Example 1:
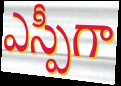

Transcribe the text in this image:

ఎస్పీగా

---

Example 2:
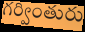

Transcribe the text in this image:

గర్వింతురు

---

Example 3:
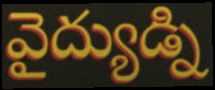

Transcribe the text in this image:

వైద్యుడ్ని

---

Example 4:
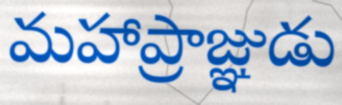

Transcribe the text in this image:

మహాప్రాజ్ఞుడు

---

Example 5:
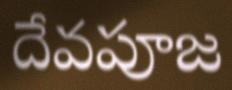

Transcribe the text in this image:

దేవపూజ